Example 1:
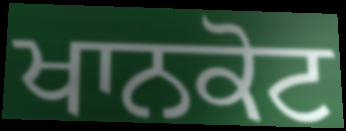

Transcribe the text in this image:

ਖਾਨਕੋਟ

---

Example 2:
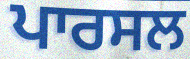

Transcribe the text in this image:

ਪਾਰਸਲ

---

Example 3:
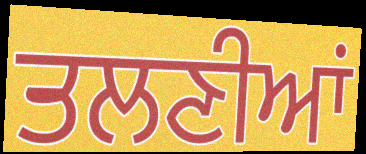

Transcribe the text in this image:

ਤਲਣੀਆਂ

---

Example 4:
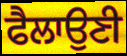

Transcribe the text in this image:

ਫੈਲਾਉਣੀ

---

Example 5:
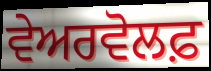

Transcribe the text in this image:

ਵੇਅਰਵੋਲਫ਼